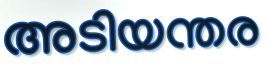
അടിയന്തര